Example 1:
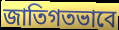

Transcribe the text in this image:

জাতিগতভাবে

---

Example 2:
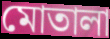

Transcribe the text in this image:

মোতালা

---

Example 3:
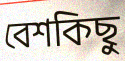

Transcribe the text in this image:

বেশকিছু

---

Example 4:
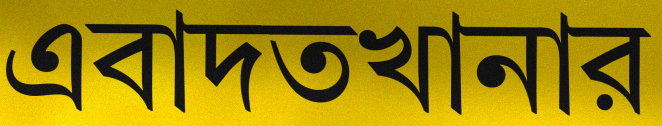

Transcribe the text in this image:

এবাদতখানার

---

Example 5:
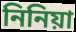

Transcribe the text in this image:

নিনিয়া